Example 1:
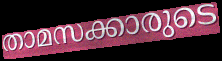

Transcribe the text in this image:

താമസക്കാരുടെ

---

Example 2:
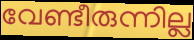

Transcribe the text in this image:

വേണ്ടീരുന്നില്ല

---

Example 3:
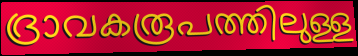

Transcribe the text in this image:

ദ്രാവകരൂപത്തിലുള്ള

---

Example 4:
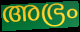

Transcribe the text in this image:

അഭ്രം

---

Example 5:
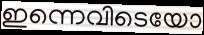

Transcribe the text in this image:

ഇന്നെവിടെയോ